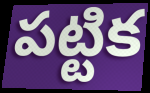
పట్టిక